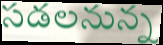
సడలనున్న